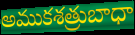
అముకశత్రుబాధా